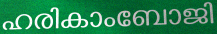
ഹരികാംബോജി